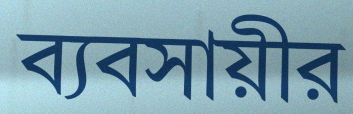
ব্যবসায়ীর